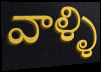
వాళ్ళి